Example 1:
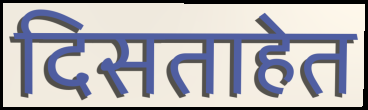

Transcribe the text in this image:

दिसताहेत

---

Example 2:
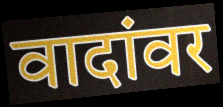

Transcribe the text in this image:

वादांवर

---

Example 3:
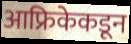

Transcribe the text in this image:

आफ्रिकेकडून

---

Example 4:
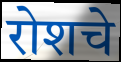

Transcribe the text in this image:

रोशचे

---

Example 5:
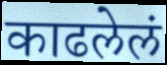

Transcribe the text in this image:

काढलेलं